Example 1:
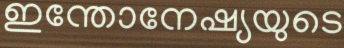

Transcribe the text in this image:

ഇന്തോനേഷ്യയുടെ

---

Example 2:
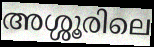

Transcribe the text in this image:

അശ്ശൂരിലെ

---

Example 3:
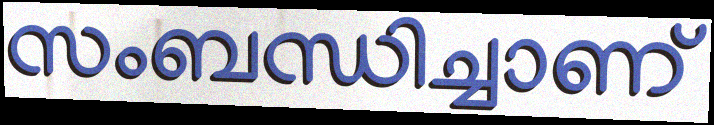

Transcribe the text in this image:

സംബന്ധിച്ചാണ്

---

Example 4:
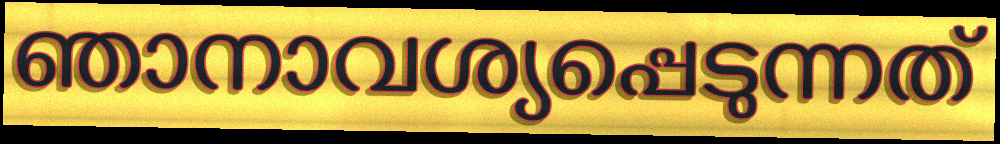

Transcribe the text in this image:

ഞാനാവശ്യപ്പെടുന്നത്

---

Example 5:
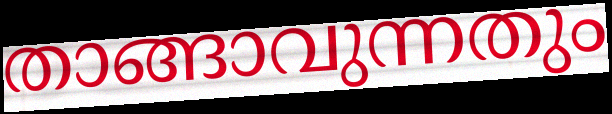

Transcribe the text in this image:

താങ്ങാവുന്നതും